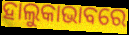
ହାଲୁକାଭାବରେ